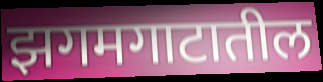
झगमगाटातील